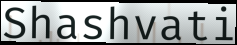
Shashvati